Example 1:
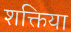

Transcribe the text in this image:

शक्तिया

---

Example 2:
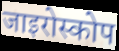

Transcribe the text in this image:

जाइरोस्कोप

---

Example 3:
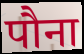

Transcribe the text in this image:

पौना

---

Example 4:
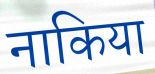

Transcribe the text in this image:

नाकिया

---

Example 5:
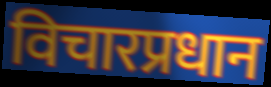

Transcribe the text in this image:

विचारप्रधान